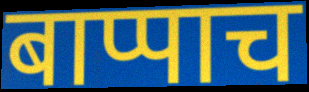
बाप्पाच